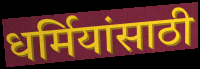
धर्मियांसाठी